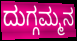
ದುಗ್ಗಮ್ಮನ